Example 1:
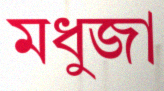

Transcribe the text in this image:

মধুজা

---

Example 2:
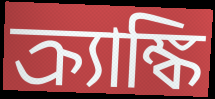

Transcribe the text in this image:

ক্র্যাঙ্কি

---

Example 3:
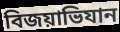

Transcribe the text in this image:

বিজয়াভিযান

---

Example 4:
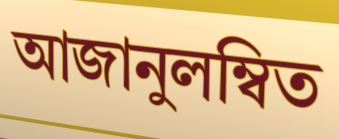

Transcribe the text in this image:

আজানুলম্বিত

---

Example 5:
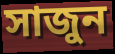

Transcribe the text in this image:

সাজুন